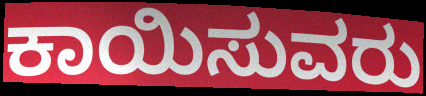
ಕಾಯಿಸುವರು